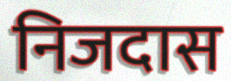
निजदास